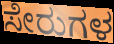
ಸೇರುಗಳ